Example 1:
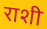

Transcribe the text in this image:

राशी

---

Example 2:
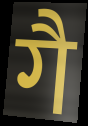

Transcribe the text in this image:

गै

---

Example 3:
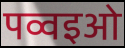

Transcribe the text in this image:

पव्वइओ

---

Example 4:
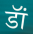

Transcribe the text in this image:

डॉं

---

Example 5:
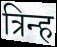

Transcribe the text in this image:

त्रिन्ह